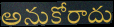
అనుకోరాదు